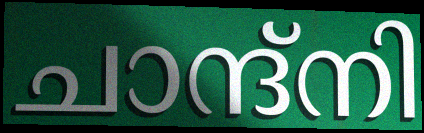
ചാന്ദ്നി